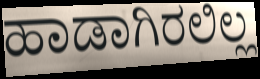
ಹಾಡಾಗಿರಲಿಲ್ಲ